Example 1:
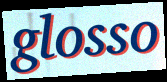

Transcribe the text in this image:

glosso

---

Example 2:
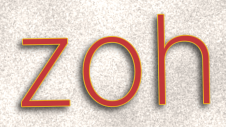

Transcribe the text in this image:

zoh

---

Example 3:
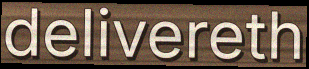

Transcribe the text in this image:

delivereth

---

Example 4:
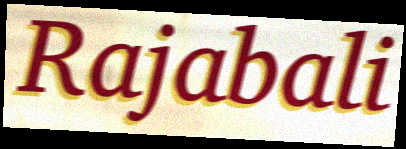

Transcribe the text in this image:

Rajabali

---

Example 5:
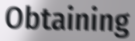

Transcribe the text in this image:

Obtaining